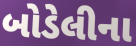
બોડેલીના